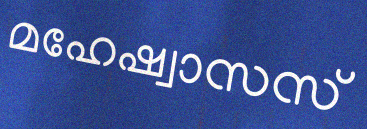
മഹേഷ്വാസസ്